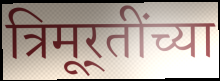
त्रिमूर्तींच्या